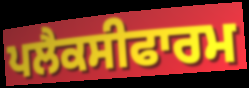
ਪਲੈਕਸੀਫਾਰਮ